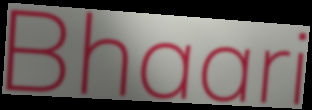
Bhaari